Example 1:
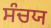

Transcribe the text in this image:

ਸੰਚਯ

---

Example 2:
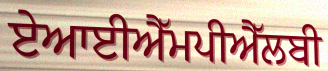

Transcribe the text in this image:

ਏਆਈਐੱਮਪੀਐੱਲਬੀ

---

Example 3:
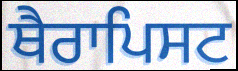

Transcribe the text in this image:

ਥੈਰਾਪਿਸਟ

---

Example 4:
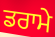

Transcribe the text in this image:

ਡਰਾਮੇ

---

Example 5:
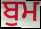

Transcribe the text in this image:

ਬੁਮ